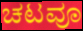
ಚಟವೂ